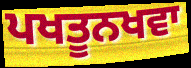
ਪਖਤੂਨਖਵਾ